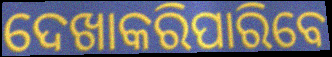
ଦେଖାକରିପାରିବେ